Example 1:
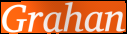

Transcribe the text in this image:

Grahan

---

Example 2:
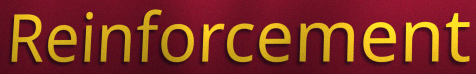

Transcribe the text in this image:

Reinforcement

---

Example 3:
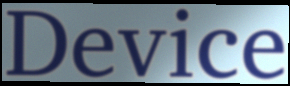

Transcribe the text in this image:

Device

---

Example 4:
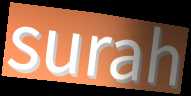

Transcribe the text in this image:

surah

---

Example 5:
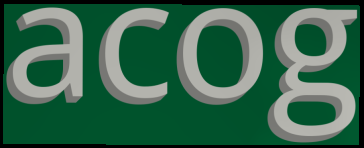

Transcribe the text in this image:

acog